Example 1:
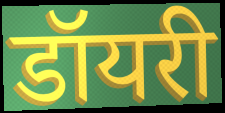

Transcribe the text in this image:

डॉयरी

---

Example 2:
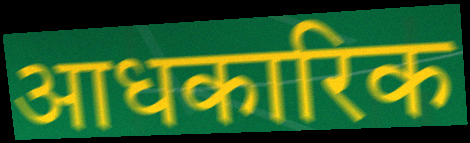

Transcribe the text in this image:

आधकारिक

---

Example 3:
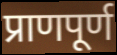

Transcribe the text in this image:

प्राणपूर्ण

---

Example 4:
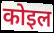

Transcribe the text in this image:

कोइल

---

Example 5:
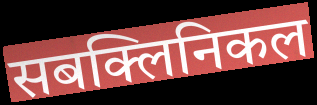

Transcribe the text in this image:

सबक्लिनिकल